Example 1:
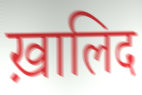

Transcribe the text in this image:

ख़ालिद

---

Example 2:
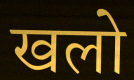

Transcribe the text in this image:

खलो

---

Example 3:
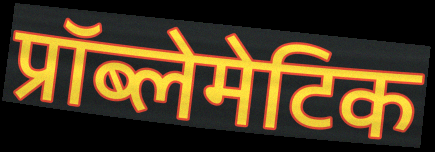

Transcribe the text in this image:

प्रॉब्लेमेटिक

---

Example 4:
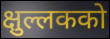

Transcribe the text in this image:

क्षुल्लकको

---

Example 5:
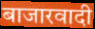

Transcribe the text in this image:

बाजारवादी